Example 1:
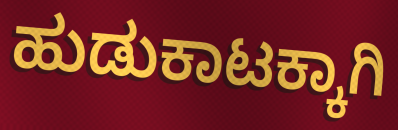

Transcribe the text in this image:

ಹುಡುಕಾಟಕ್ಕಾಗಿ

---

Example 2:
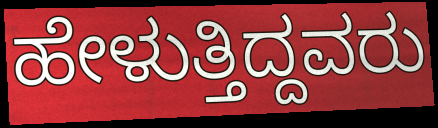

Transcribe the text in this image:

ಹೇಳುತ್ತಿದ್ದವರು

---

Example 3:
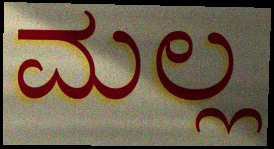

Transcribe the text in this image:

ಮಲ್ಲ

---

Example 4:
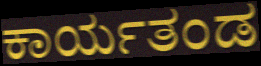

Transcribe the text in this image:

ಕಾರ್ಯತಂಡ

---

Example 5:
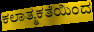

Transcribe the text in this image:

ಕಲಾತ್ಮಕತೆಯಿಂದ